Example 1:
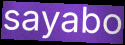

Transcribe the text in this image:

sayabo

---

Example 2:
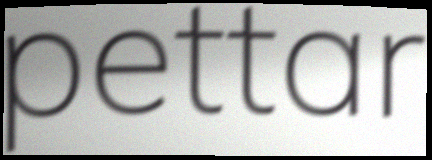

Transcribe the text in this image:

pettar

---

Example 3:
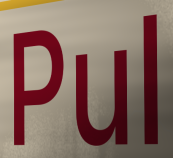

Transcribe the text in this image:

Pul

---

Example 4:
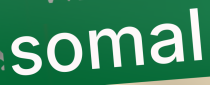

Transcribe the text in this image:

somal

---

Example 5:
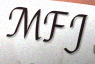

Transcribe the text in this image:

MFJ